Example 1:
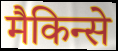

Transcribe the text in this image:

मैकिन्से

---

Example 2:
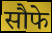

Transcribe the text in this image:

सौफे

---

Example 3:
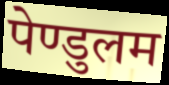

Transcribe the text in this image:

पेण्डुलम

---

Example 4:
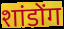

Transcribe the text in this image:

शांडोंग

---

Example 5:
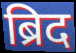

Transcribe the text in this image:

ब्रिद